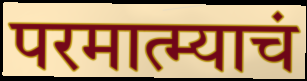
परमात्म्याचं